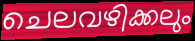
ചെലവഴിക്കലും